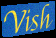
Vish